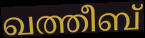
ഖത്തീബ്